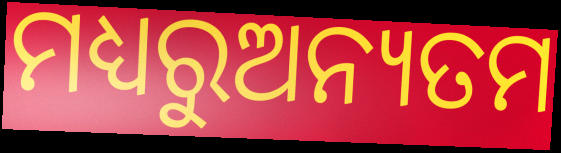
ମଧ୍ୟରୁଅନ୍ୟତମ